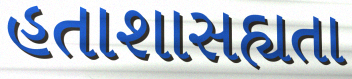
હતાશાસહ્યતા